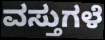
ವಸ್ತುಗಳೆ